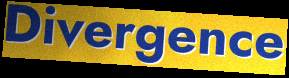
Divergence